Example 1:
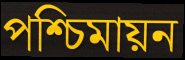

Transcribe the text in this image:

পশ্চিমায়ন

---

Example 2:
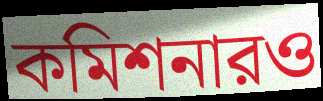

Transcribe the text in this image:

কমিশনারও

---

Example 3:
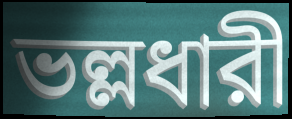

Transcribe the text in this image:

ভল্লধারী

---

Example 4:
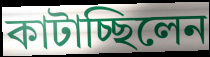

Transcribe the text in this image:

কাটাচ্ছিলেন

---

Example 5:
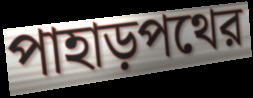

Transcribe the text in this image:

পাহাড়পথের